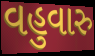
વહુવારુ